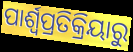
ପାର୍ଶ୍ୱପ୍ରତିକ୍ରିୟାରୁ